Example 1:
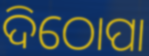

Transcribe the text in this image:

ଦିଠୋପା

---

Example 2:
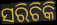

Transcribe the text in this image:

ସରିଚିକି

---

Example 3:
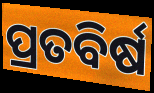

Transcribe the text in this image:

ପ୍ରତବିର୍ଷ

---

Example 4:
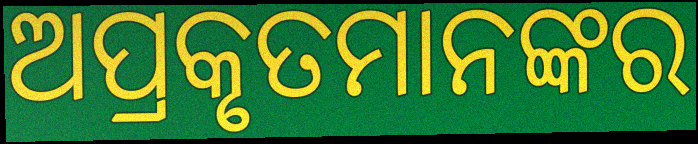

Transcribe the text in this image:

ଅପ୍ରକୃତମାନଙ୍କର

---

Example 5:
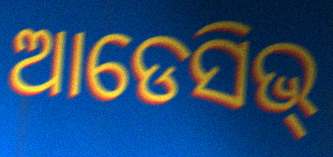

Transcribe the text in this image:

ଆଡେସିଭ୍